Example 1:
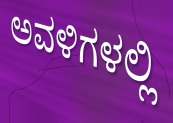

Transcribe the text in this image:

ಅವಳಿಗಳಲ್ಲಿ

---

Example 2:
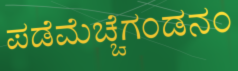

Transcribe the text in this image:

ಪಡೆಮೆಚ್ಚೆಗಂಡನಂ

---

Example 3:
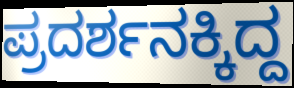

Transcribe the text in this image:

ಪ್ರದರ್ಶನಕ್ಕಿದ್ದ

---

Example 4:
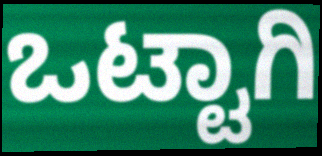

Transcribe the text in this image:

ಒಟ್ಟಾಗಿ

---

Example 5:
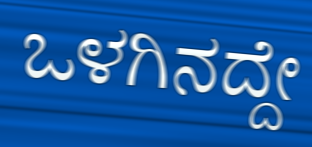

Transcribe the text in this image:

ಒಳಗಿನದ್ದೇ